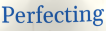
Perfecting